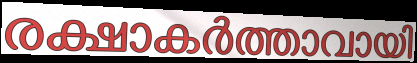
രക്ഷാകർത്താവായി